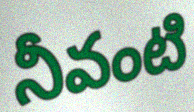
నీవంటి